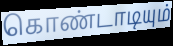
கொண்டாடியும்